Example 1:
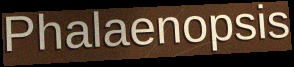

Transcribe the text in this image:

Phalaenopsis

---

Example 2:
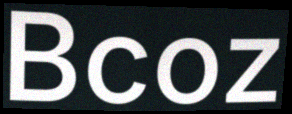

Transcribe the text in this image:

Bcoz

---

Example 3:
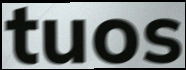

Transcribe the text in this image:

tuos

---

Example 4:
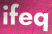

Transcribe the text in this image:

ifeq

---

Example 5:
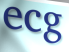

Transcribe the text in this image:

ecg